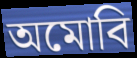
অমোবি